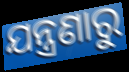
ଯନ୍ତ୍ରଣାରୁ